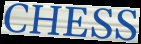
CHESS